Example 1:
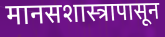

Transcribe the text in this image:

मानसशास्त्रापासून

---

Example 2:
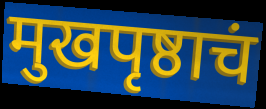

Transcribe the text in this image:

मुखपृष्ठाचं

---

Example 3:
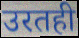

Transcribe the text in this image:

उरतही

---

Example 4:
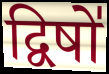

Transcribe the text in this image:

द्विषो॑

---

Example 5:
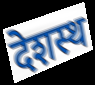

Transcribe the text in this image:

देशस्थ